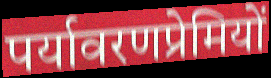
पर्यावरणप्रेमियों